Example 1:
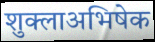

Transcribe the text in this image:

शुक्लाअभिषेक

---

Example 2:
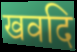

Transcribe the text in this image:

खवदि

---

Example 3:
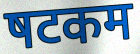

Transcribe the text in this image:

षटकम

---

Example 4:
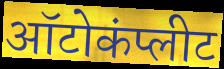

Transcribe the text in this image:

ऑटोकंप्लीट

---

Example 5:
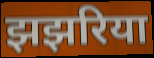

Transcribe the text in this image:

झझरिया